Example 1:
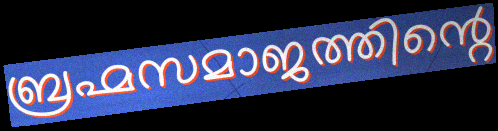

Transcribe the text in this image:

ബ്രഹ്മസമാജത്തിന്റെ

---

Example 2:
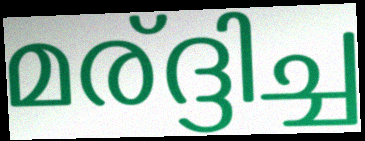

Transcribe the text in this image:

മര്ദ്ദിച്ച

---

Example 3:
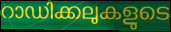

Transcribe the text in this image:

റാഡിക്കലുകളുടെ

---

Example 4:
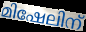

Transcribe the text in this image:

മിഷേലിന്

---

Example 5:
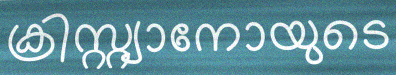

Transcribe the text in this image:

ക്രിസ്റ്റ്യാനോയുടെ